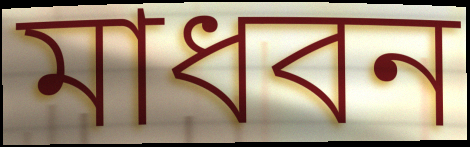
মাধবন